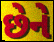
છેને